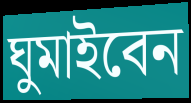
ঘুমাইবেন